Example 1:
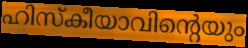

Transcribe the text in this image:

ഹിസ്കീയാവിന്റെയും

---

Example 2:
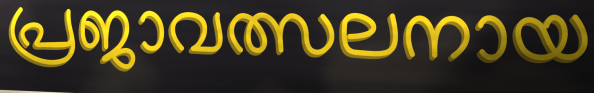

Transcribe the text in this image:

പ്രജാവത്സലനായ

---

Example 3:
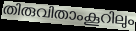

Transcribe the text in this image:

തിരുവിതാംകൂറിലും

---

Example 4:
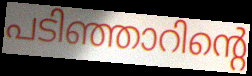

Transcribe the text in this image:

പടിഞ്ഞാറിന്റെ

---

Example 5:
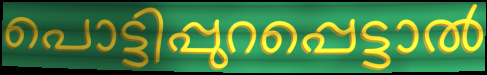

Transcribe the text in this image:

പൊട്ടിപ്പുറപ്പെട്ടാൽ